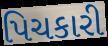
પિચકારી